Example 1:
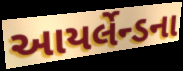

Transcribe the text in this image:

આયર્લેન્ડના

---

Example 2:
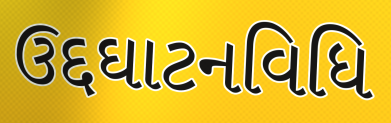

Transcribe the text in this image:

ઉદ્દઘાટનવિધિ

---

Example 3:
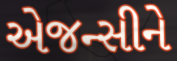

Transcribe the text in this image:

એજન્સીને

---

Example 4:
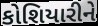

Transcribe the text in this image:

કોશિયારીને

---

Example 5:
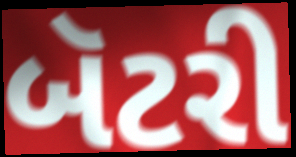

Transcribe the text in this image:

બૅટરી